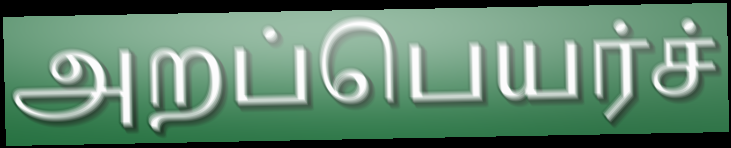
அறப்பெயர்ச்